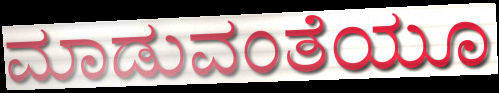
ಮಾಡುವಂತೆಯೂ